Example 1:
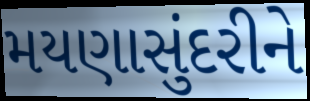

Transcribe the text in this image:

મયણાસુંદરીને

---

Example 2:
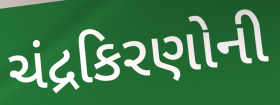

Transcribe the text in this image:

ચંદ્રકિરણોની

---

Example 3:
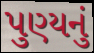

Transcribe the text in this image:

પુણ્યનું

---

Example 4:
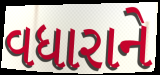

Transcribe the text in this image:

વધારાને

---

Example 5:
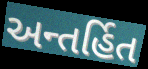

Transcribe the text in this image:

અન્તર્હિત